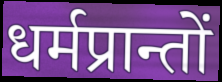
धर्मप्रान्तों